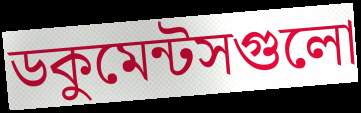
ডকুমেন্টসগুলো